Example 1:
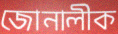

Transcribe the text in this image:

জোনালীক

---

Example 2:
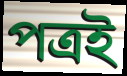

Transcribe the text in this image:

পত্ৰই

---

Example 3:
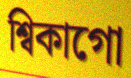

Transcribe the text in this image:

শ্বিকাগো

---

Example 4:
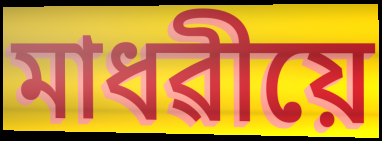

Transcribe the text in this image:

মাধৱীয়ে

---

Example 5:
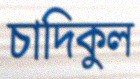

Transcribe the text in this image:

চাদিকুল